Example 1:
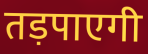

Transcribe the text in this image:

तड़पाएगी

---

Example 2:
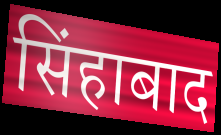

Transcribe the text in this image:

सिंहाबाद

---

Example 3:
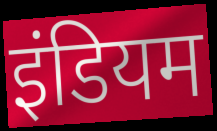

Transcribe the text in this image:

इंडियम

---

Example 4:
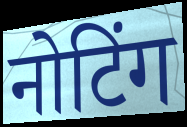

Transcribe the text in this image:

नोटिंग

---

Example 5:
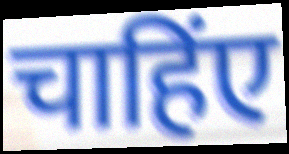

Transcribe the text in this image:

चाहिंए